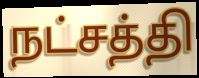
நட்சத்தி